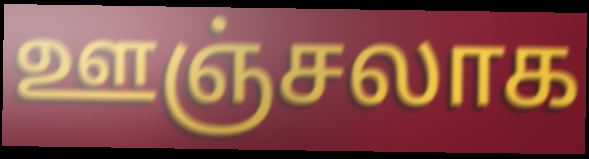
ஊஞ்சலாக